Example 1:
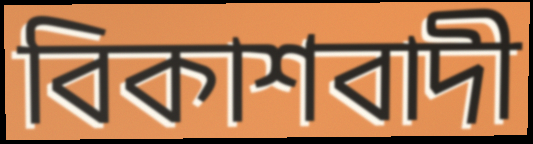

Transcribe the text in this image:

বিকাশবাদী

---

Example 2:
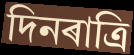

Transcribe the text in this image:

দিনৰাত্ৰি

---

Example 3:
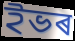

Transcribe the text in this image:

ইভৰ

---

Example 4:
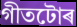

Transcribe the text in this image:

গীতটোৰ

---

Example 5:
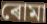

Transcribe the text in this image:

ৰোমা